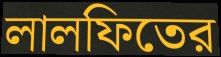
লালফিতের